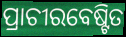
ପ୍ରାଚୀରବେଷ୍ଟିତ